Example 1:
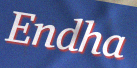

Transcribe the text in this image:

Endha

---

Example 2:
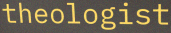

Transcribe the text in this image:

theologist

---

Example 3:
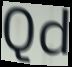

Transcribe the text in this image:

Qd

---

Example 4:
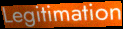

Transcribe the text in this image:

Legitimation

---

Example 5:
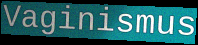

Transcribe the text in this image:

Vaginismus